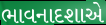
ભાવનાદશાએ